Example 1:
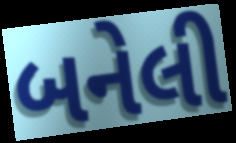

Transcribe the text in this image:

બનેલી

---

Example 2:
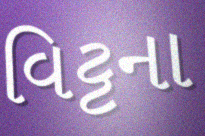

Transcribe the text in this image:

વિટ્ટના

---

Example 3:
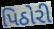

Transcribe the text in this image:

પિઠોરી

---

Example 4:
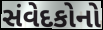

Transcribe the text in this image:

સંવેદકોનો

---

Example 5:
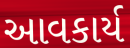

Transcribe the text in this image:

આવકાર્ય